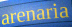
arenaria